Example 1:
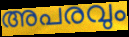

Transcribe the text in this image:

അപരവും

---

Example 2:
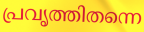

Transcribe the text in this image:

പ്രവൃത്തിതന്നെ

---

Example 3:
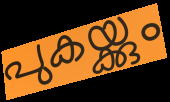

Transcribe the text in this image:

പുകയ്ക്കും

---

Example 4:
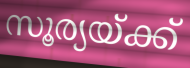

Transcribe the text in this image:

സൂര്യയ്ക്ക്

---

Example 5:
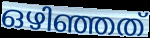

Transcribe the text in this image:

ഒഴിഞ്ഞത്